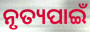
ନୃତ୍ୟପାଇଁ